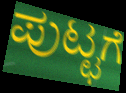
ಪುಟ್ಟಗೆ